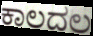
ಕಾಲದಲ